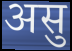
असु